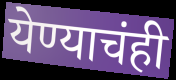
येण्याचंही